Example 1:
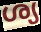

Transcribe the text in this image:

ശ്യ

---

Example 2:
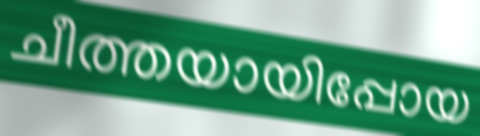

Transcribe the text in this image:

ചീത്തയായിപ്പോയ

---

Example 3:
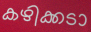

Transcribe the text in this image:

കഴിക്കടാ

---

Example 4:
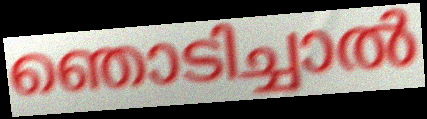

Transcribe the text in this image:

ഞൊടിച്ചാൽ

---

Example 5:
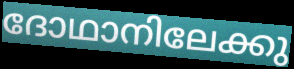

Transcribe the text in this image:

ദോഥാനിലേക്കു